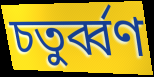
চতুর্ব্বণ